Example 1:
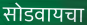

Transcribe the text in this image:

सोडवायचा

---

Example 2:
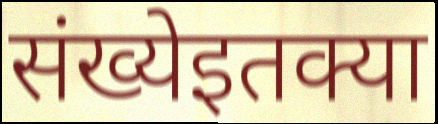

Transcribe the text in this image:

संख्येइतक्या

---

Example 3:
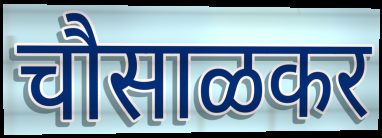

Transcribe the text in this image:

चौसाळकर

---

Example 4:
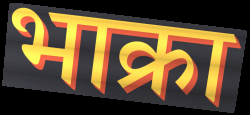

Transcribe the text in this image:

भाक्रा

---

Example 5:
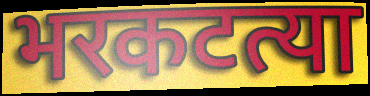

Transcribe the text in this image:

भरकटत्या